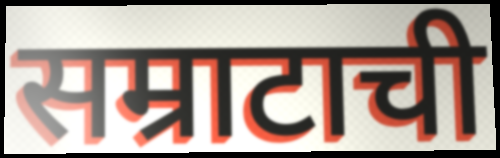
सम्राटाची